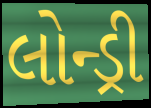
લોન્ડ્રી